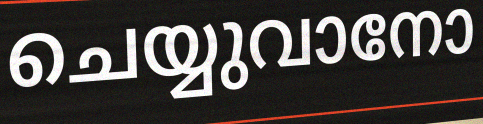
ചെയ്യുവാനോ